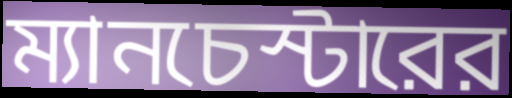
ম্যানচেস্টারের